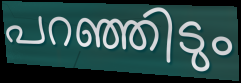
പറഞ്ഞിടും